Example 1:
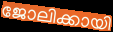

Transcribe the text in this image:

ജോലിക്കായി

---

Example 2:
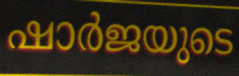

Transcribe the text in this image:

ഷാർജയുടെ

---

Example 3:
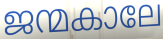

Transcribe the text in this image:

ജന്മകാലേ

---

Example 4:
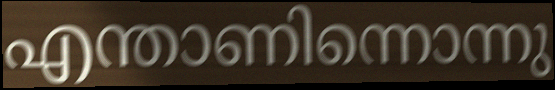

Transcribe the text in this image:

എന്താണിന്നൊന്നു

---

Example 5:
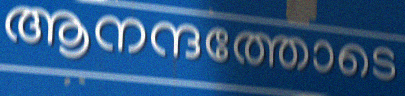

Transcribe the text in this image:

ആനന്ദത്തോടെ